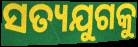
ସତ୍ୟଯୁଗକୁ